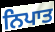
ਨਿਪਾਤ